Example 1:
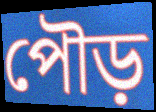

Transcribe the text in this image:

পৌড়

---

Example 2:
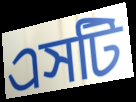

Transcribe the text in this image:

এসটি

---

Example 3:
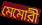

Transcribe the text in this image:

মেমোরী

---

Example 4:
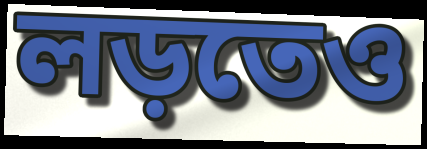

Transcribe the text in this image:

লড়তেও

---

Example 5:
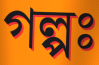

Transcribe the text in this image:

গল্পঃ